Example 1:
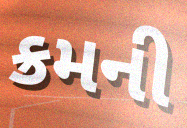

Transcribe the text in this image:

ક્રમની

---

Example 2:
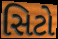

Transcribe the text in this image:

સિટો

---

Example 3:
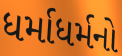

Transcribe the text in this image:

ધર્માધર્મનો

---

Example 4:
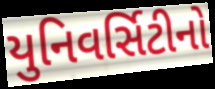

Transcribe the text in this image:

યુનિવર્સિટીનો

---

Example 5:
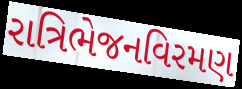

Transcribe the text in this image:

રાત્રિભેજનવિરમણ